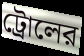
ট্রোলের